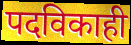
पदविकाही